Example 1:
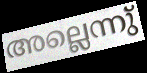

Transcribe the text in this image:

അല്ലെന്നു്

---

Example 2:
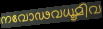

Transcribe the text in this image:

നവോഢവധൂമിവ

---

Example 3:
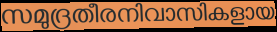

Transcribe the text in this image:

സമുദ്രതീരനിവാസികളായ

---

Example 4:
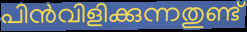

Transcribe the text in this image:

പിൻവിളിക്കുന്നതുണ്ട്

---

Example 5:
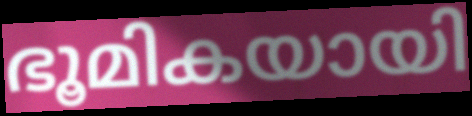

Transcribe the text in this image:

ഭൂമികയായി